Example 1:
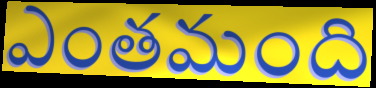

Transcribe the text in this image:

ఎంతమంది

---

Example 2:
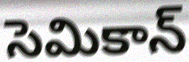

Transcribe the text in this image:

సెమికాన్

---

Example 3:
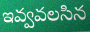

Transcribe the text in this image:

ఇవ్వవలసిన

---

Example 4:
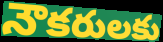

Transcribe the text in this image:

నౌకరులకు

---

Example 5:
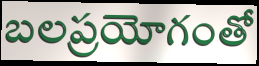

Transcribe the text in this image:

బలప్రయోగంతో